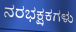
ನರಭಕ್ಷಕಗಳು